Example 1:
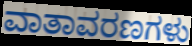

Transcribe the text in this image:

ವಾತಾವರಣಗಳು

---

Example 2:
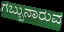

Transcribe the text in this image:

ಗಬ್ಬುನಾರುವ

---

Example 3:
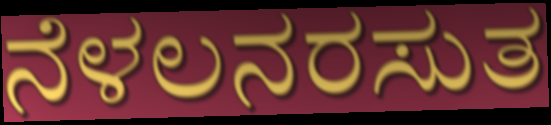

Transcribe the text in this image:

ನೆಳಲನರಸುತ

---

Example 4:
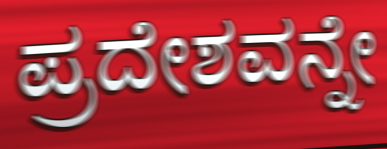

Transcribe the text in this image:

ಪ್ರದೇಶವನ್ನೇ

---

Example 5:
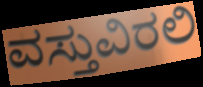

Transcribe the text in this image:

ವಸ್ತುವಿರಲಿ